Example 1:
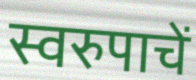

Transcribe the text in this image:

स्वरुपाचें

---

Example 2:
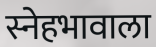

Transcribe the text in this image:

स्नेहभावाला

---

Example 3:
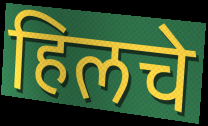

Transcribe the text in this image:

हिलचे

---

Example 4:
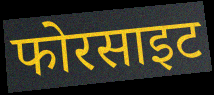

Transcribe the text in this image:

फोरसाइट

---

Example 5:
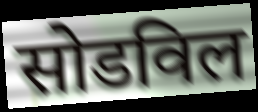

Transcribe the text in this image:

सोडविल